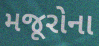
મજૂરોના